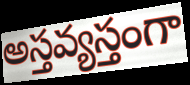
అస్తవ్యస్తంగా